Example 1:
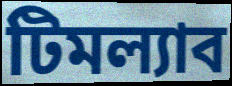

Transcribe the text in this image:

টিমল্যাব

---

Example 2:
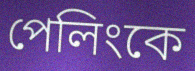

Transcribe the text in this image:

পেলিংকে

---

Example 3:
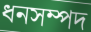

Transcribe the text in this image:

ধনসম্পদ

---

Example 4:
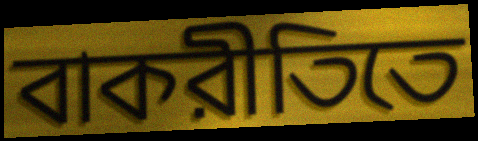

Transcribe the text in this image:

বাকরীতিতে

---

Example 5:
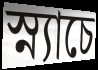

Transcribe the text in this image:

স্ন্যাচে